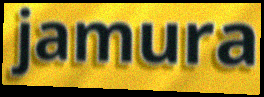
jamura